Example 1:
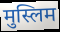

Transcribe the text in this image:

मुस्लिम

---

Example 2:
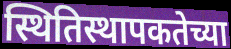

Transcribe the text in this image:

स्थितिस्थापकतेच्या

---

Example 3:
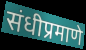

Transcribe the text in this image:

संधीप्रमाणे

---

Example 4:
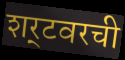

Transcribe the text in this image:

शर्टवरची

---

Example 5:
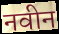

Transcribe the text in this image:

नवीन